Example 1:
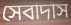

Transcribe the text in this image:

সেবাদাস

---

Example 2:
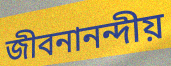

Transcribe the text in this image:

জীবনানন্দীয়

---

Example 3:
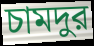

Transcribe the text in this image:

চামদুর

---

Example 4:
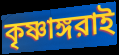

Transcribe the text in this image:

কৃষ্ণাঙ্গরাই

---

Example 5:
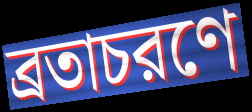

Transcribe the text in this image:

ব্রতাচরণে